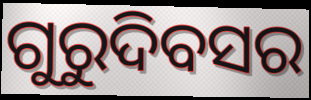
ଗୁରୁଦିବସର